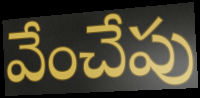
వేంచేపు